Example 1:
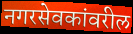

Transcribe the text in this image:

नगरसेवकांवरील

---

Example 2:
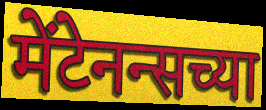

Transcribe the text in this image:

मेंटेनन्सच्या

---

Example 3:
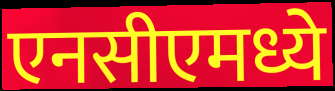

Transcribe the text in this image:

एनसीएमध्ये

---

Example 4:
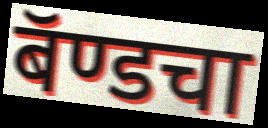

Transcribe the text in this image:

बॅण्डचा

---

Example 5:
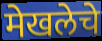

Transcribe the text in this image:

मेखलेचे